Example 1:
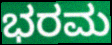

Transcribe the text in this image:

ಭರಮ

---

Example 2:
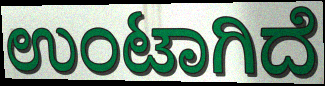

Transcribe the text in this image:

ಉಂಟಾಗಿದೆ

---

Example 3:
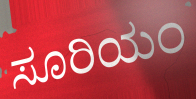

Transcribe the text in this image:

ಸೂರಿಯಂ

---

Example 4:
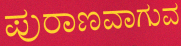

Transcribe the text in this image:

ಪುರಾಣವಾಗುವ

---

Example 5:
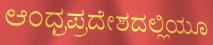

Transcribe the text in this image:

ಆಂಧ್ರಪ್ರದೇಶದಲ್ಲಿಯೂ